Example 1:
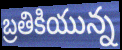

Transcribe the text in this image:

బ్రతికియున్న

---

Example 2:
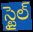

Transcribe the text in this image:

స్టైల్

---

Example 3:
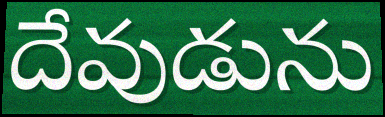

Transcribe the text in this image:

దేవుడును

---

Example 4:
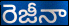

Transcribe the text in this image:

రెజీనా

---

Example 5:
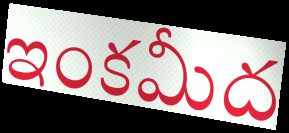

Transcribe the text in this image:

ఇంకమీద